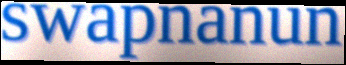
swapnanun